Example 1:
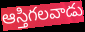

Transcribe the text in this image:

ఆస్తిగలవాడు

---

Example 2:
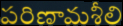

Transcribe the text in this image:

పరిణామశీలి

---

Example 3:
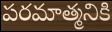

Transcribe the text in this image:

పరమాత్మనికి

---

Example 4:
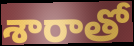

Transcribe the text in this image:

శారాతో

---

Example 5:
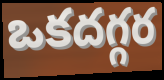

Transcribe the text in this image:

ఒకదగ్గర